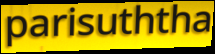
parisuththa